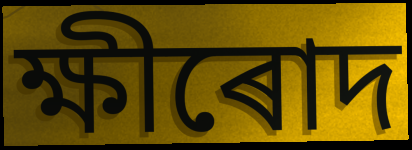
ক্ষীৰোদ